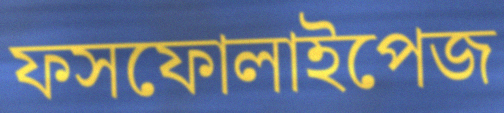
ফসফোলাইপেজ